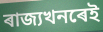
ৰাজ্যখনৰেই